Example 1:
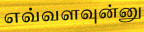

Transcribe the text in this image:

எவ்வளவுன்னு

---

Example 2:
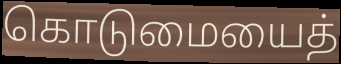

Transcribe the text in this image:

கொடுமையைத்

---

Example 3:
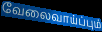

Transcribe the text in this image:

வேலைவாய்ப்பும்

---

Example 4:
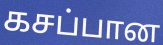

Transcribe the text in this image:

கசப்பான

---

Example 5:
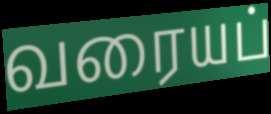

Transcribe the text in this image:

வரையப்